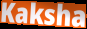
Kaksha